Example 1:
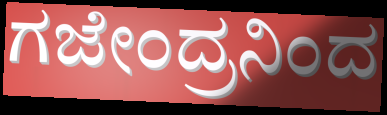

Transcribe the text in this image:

ಗಜೇಂದ್ರನಿಂದ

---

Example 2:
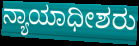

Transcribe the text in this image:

ನ್ಯಾಯಾಧೀಶರು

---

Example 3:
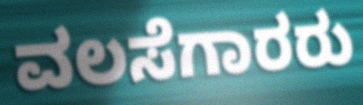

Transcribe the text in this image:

ವಲಸೆಗಾರರು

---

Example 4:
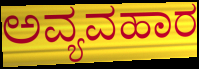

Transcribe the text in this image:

ಅವ್ಯವಹಾರ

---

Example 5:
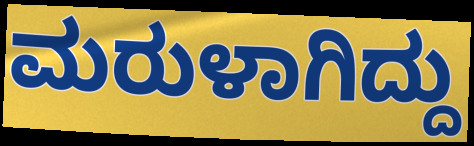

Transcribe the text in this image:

ಮರುಳಾಗಿದ್ದು